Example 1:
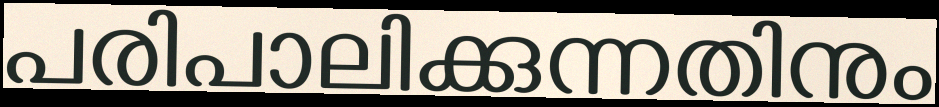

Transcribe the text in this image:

പരിപാലിക്കുന്നതിനും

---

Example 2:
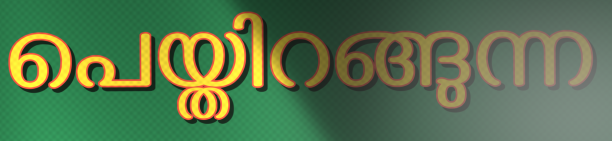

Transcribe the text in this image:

പെയ്തിറങ്ങുന്ന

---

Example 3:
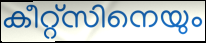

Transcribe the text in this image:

കീറ്റ്സിനെയും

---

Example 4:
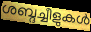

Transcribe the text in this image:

ശബ്ദച്ചീളുകൾ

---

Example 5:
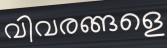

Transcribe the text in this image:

വിവരങ്ങളെ